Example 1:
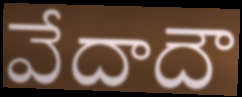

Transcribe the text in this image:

వేదాదౌ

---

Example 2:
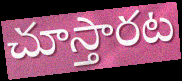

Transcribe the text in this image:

చూస్తారట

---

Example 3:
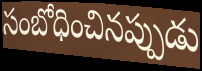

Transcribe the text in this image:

సంబోధించినప్పుడు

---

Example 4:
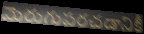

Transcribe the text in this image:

మెరుగుపరచడానికీ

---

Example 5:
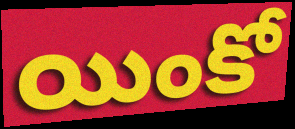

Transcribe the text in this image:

యింకో